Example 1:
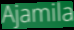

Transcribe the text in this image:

Ajamila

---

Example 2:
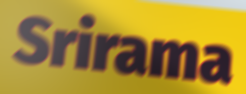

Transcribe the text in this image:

Srirama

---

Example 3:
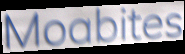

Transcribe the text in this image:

Moabites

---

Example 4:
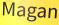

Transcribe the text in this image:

Magan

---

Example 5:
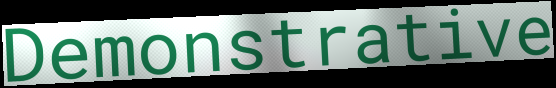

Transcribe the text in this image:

Demonstrative